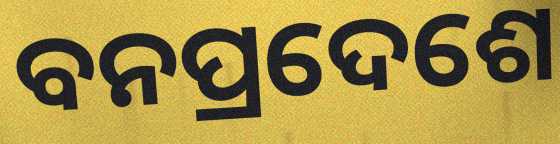
ବନପ୍ରଦେଶେ